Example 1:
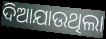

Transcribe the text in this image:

ଦିଆଯାଉଥିଲା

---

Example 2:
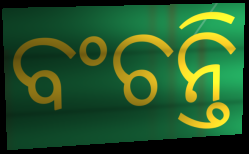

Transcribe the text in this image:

ବଂଚନ୍ତି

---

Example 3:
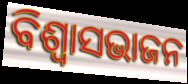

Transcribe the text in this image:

ବିଶ୍ଵାସଭାଜନ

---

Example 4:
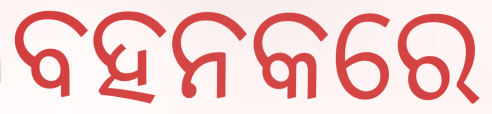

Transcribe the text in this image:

ବହନକରେ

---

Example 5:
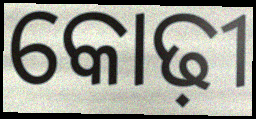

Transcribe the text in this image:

କୋଢ଼ୀ